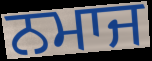
ਨਮਾਜ